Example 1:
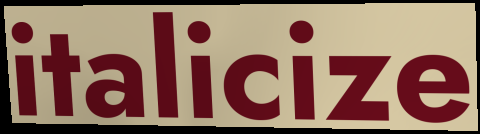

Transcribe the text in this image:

italicize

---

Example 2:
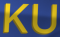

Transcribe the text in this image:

KU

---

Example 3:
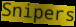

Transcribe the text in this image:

Snipers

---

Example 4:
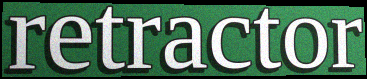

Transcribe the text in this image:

retractor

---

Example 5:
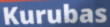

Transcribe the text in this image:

Kurubas